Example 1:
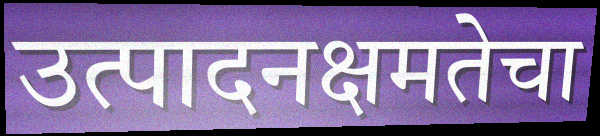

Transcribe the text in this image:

उत्पादनक्षमतेचा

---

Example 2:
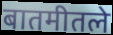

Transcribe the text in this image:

बातमीतले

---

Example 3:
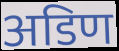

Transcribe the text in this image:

अडिण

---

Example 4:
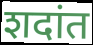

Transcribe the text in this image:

शदांत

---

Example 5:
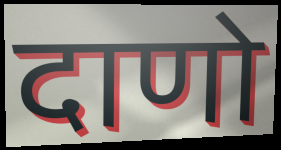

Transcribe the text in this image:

दाणो